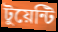
টুয়েন্টি